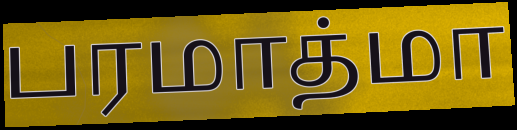
பரமாத்மா